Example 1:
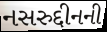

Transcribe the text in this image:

નસરુદ્દીનની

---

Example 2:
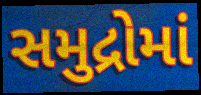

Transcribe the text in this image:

સમુદ્રોમાં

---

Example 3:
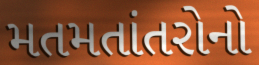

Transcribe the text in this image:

મતમતાંતરોનો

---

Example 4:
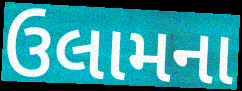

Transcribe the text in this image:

ઉલામના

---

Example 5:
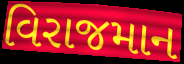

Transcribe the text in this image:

વિરાજમાન